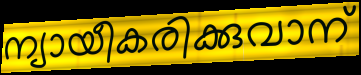
ന്യായീകരിക്കുവാന്